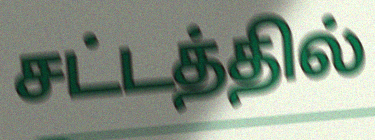
சட்டத்தில்